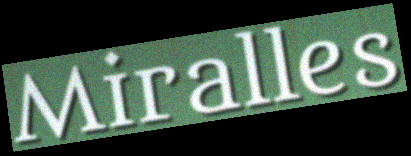
Miralles